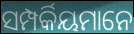
ସମ୍ପର୍କିୟମାନେ